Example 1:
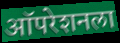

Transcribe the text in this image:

ऑपरेशनला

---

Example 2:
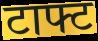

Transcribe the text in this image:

टाफ्ट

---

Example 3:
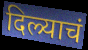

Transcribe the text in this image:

दिल्याचं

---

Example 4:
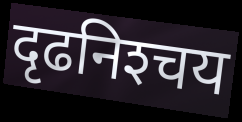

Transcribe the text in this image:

दृढनिश्‍चय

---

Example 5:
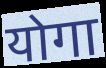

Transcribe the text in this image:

योगा